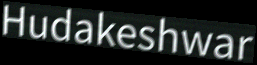
Hudakeshwar